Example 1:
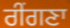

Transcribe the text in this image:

ਰੀਂਗਣਾ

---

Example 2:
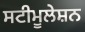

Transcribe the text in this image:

ਸਟੀਮੂਲੇਸ਼ਨ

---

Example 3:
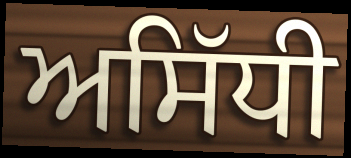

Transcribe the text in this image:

ਅਸਿੱਧੀ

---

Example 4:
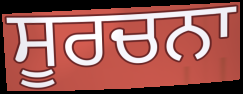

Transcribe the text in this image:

ਸੂਰਚਨਾ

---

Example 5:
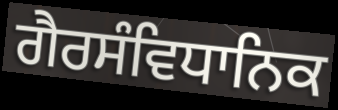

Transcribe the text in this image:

ਗੈਰਸੰਵਿਧਾਨਿਕ